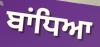
ਬਾਂਧਿਆ